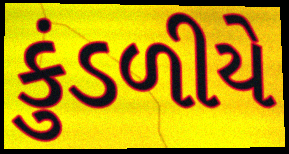
કુંડળીયે